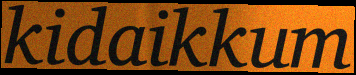
kidaikkum